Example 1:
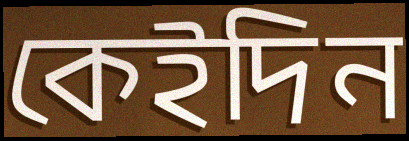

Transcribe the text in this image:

কেইদিন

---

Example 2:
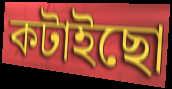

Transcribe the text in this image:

কটাইছো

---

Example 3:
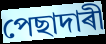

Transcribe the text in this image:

পেছাদাৰী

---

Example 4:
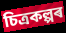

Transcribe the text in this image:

চিত্ৰকল্পৰ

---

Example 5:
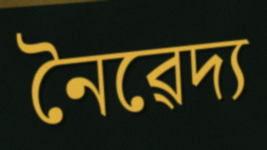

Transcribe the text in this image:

নৈৱেদ্য